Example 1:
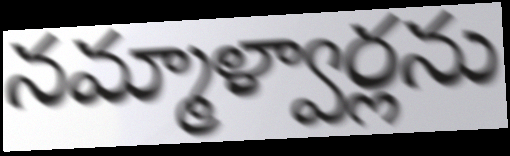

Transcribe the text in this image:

నమ్మాళ్వార్లను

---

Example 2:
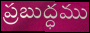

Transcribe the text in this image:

ప్రబుద్ధము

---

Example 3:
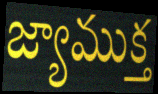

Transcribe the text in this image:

జ్యాముక్త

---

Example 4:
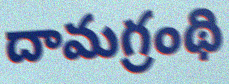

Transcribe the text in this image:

దామగ్రంథి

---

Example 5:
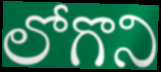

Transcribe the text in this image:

లోగొని